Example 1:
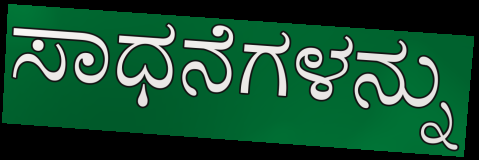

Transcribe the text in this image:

ಸಾಧನೆಗಳನ್ನು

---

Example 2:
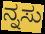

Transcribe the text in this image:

ನ್ನಸು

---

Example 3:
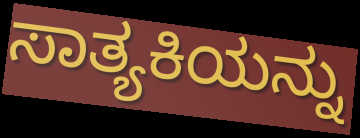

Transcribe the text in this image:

ಸಾತ್ಯಕಿಯನ್ನು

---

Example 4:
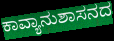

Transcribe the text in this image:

ಕಾವ್ಯಾನುಶಾಸನದ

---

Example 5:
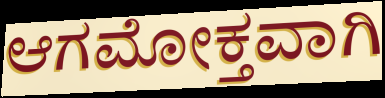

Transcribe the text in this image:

ಆಗಮೋಕ್ತವಾಗಿ